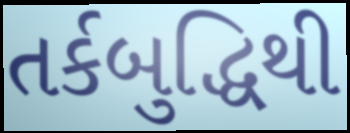
તર્કબુદ્ધિથી